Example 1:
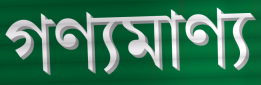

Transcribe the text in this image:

গণ্যমাণ্য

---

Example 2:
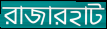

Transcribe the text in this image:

রাজারহাট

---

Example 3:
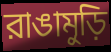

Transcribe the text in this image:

রাঙামুড়ি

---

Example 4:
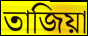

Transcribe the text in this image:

তাজিয়া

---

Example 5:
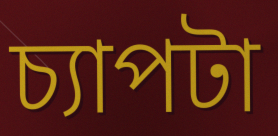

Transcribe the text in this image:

চ্যাপটা